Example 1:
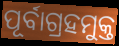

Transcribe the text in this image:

ପୂର୍ବାଗ୍ରହମୁକ୍ତ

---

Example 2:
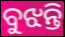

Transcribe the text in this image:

ବୁଝନ୍ତି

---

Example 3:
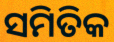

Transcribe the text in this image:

ସମିତିକ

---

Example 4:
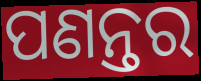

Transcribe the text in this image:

ପଣନ୍ତର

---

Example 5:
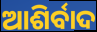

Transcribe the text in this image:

ଆଶିର୍ବାଦ